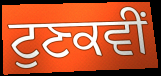
ਟੁਣਕਵੀਂ